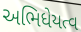
અભિધેયત્વ